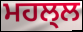
ਮਹਲ੍ਲ